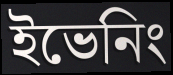
ইভেনিং